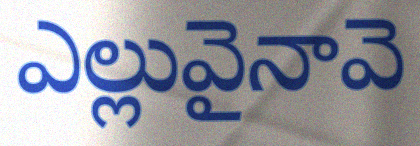
ఎల్లువైనావె